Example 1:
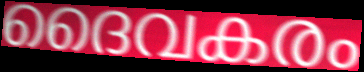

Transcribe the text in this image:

ദൈവകരം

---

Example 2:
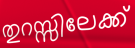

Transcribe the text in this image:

തുറസ്സിലേക്ക്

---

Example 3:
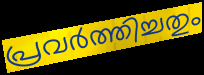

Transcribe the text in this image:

പ്രവർത്തിച്ചതും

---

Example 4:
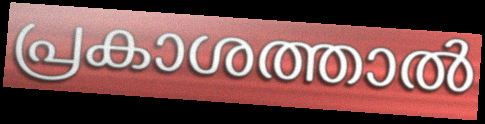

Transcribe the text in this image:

പ്രകാശത്താൽ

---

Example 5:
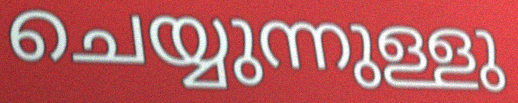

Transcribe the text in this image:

ചെയ്യുന്നുള്ളു